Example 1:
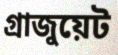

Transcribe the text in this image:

গ্রাজুয়েট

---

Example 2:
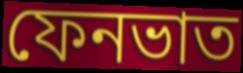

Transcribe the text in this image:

ফেনভাত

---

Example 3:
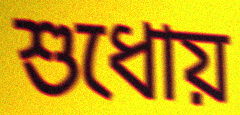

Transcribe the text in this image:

শুধোয়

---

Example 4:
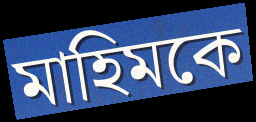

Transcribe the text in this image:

মাহিমকে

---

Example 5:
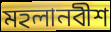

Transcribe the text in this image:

মহলানবীশ